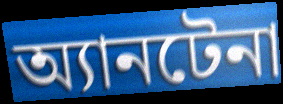
অ্যানটেনা